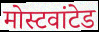
मोस्टवांटेड